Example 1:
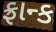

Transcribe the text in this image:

ફ્રાન્ક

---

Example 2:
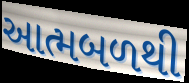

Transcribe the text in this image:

આત્મબળથી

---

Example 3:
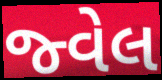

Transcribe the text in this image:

જ્વેલ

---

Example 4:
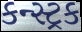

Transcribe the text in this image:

કન્સ્ટ્રક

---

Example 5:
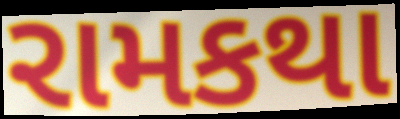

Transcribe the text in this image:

રામકથા